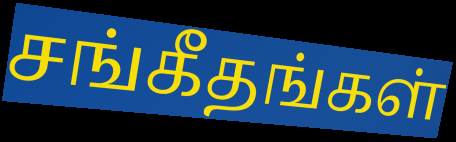
சங்கீதங்கள்